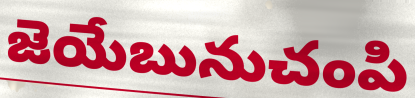
జెయేబునుచంపి